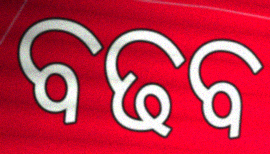
ବଢବ